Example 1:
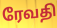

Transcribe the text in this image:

ரேவதி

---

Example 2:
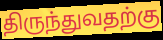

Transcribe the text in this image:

திருந்துவதற்கு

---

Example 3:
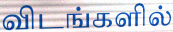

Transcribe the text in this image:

விடங்களில்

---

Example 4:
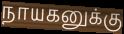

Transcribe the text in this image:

நாயகனுக்கு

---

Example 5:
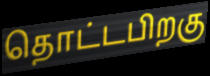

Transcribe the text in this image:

தொட்டபிறகு